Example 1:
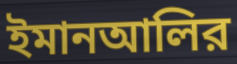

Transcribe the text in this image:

ইমানআলির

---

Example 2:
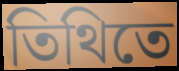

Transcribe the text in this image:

তিথিতে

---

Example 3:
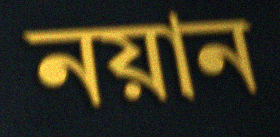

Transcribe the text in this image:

নয়ান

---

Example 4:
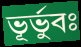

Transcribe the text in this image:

ভূর্ভুবঃ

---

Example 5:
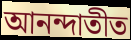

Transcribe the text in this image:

আনন্দাতীত